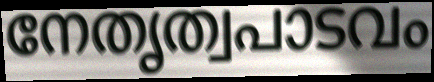
നേതൃത്വപാടവം